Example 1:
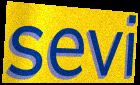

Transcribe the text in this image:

sevi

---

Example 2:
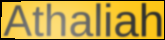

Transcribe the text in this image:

Athaliah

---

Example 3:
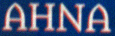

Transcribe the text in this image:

AHNA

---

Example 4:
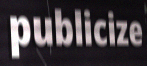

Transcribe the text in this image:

publicize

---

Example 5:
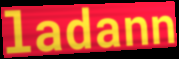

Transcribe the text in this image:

ladann